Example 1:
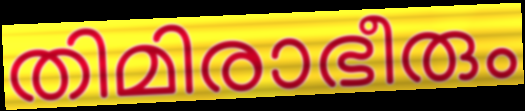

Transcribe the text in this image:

തിമിരാഭീരും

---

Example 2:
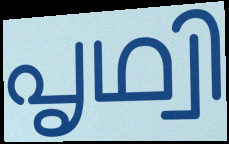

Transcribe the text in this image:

പൃഥ്വി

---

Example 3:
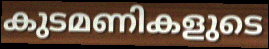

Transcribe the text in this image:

കുടമണികളുടെ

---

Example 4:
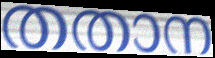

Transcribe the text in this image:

തതാന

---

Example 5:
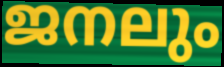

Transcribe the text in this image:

ജനലും